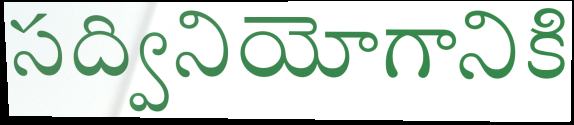
సద్వినియోగానికి